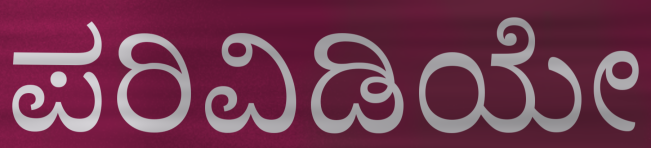
ಪರಿವಿಡಿಯೇ